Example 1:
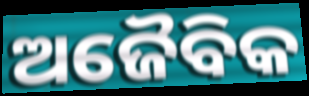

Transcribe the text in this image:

ଅଜୈବିକ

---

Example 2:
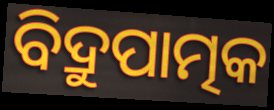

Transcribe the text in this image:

ବିଦ୍ରୁପାତ୍ମକ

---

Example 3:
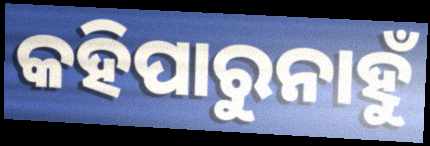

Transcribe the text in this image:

କହିପାରୁନାହୁଁ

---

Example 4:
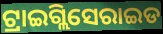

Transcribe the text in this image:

ଟ୍ରାଇଗ୍ଲିସେରାଇଡ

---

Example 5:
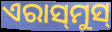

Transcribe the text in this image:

ଏରାସ୍‍ମୁସ୍